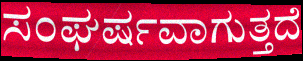
ಸಂಘರ್ಷವಾಗುತ್ತದೆ